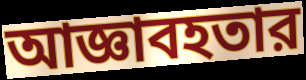
আজ্ঞাবহতার